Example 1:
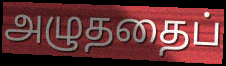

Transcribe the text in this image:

அழுததைப்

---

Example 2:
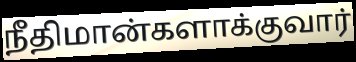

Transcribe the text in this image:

நீதிமான்களாக்குவார்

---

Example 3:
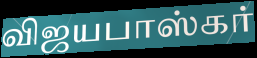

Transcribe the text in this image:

விஜயபாஸ்கர்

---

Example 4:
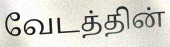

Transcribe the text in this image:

வேடத்தின்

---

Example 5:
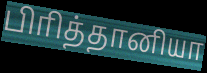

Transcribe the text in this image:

பிரித்தானியா